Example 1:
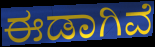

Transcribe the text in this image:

ಈಡಾಗಿವೆ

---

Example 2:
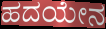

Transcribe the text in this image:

ಹದಯೇನ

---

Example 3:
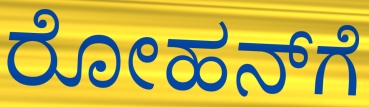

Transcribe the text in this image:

ರೋಹನ್‌ಗೆ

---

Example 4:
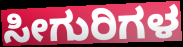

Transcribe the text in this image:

ಸೀಗುರಿಗಳ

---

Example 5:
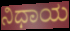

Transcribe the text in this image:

ನಿಧಾಯ